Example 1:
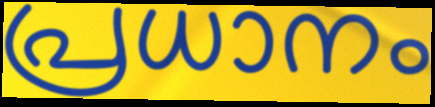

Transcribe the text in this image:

പ്രധാനം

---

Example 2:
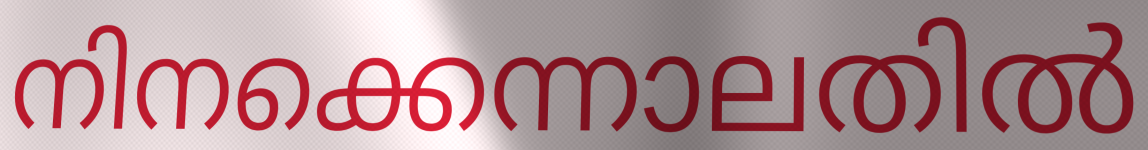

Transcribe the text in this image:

നിനക്കെന്നാലതിൽ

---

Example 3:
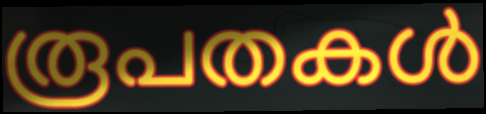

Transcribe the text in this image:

രൂപതകൾ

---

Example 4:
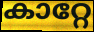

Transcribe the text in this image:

കാറ്റേ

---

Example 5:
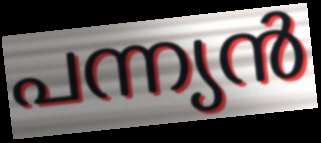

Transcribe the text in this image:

പന്ന്യൻ